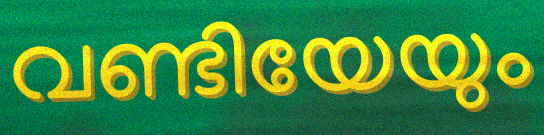
വണ്ടിയേയും